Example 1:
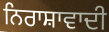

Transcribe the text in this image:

ਨਿਰਾਸ਼ਾਵਾਦੀ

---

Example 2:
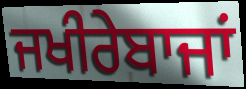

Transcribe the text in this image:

ਜਖੀਰੇਬਾਜਾਂ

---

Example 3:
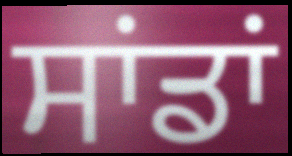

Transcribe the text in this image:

ਸਾਂਡਾਂ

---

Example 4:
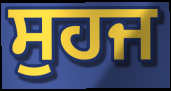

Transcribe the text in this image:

ਸੁਹਜ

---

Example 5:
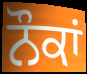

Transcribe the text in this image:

ਨੌਕਾਂ